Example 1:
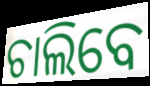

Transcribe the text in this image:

ଚାଲିବେ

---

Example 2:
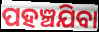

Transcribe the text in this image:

ପହଞ୍ଚଯିବା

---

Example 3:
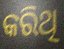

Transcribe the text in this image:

କରିଥି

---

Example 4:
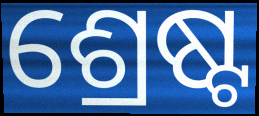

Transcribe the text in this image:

ଶ୍ରେଷ୍ଟ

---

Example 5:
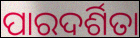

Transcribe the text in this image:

ପାରଦର୍ଶିତା